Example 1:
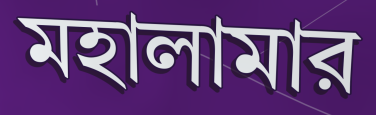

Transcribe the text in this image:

মহালামার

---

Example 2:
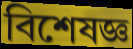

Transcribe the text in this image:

বিশেষজ্ঞ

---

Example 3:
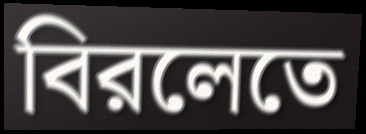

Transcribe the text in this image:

বিরলেতে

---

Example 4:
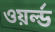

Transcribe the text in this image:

ওয়র্ল্ড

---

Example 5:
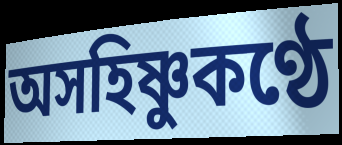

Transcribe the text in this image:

অসহিষ্ণুকণ্ঠে